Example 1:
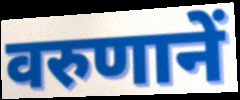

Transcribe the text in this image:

वरुणानें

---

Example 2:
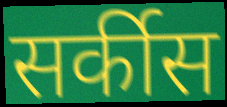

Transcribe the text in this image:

सर्कीस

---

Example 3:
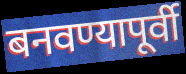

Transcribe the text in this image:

बनवण्यापूर्वी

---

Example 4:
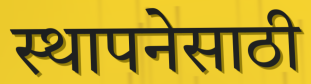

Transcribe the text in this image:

स्थापनेसाठी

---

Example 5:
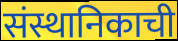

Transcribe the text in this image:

संस्थानिकाची